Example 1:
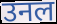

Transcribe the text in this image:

उनल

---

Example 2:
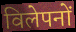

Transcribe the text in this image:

विलेपनों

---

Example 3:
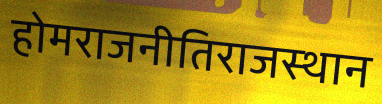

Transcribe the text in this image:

होमराजनीतिराजस्थान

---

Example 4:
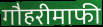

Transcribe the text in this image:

गौहरीमाफी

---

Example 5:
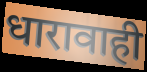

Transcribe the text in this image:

धारावाही